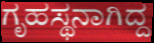
ಗೃಹಸ್ಥನಾಗಿದ್ದ